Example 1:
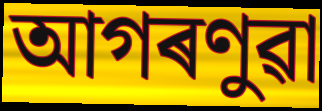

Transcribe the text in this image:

আগৰণুৱা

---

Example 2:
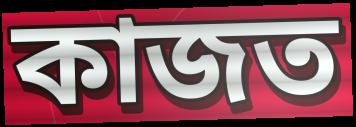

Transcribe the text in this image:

কাজত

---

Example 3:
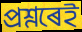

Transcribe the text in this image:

প্ৰশ্নৰেই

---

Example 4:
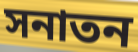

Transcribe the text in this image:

সনাতন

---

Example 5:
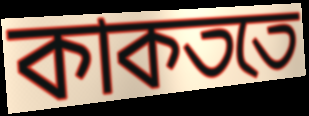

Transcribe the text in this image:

কাকততে